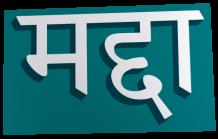
मद्दा